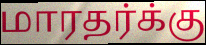
மாரதர்க்கு